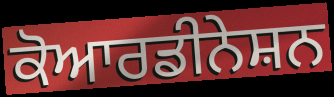
ਕੋਆਰਡੀਨੇਸ਼ਨ